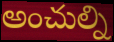
అంచుల్ని